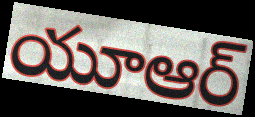
యూఆర్